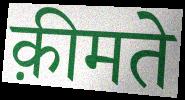
क़ीमते